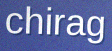
chirag